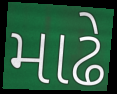
માઢે